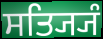
ਸਤ੍ਯ੍ਯਿੰ